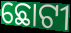
ଛୋଟୀ